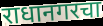
राधानगरचा